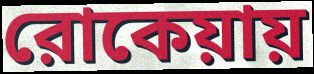
রোকেয়ায়